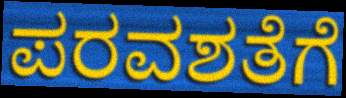
ಪರವಶತೆಗೆ